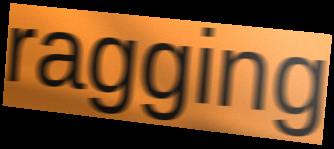
ragging